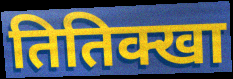
तितिक्खा